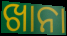
ଖାନା